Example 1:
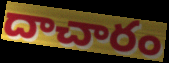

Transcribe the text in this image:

దాచారం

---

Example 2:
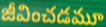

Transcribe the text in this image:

జీవించడమూ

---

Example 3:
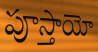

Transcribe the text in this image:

పూస్తాయో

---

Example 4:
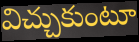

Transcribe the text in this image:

విచ్చుకుంటూ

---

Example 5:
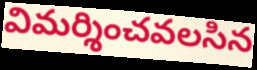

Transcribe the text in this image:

విమర్శించవలసిన